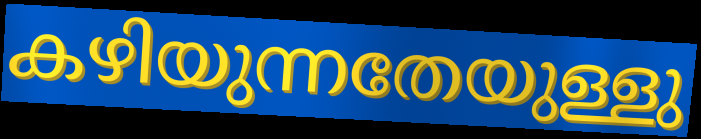
കഴിയുന്നതേയുള്ളു